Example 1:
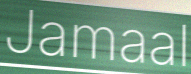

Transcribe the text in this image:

Jamaal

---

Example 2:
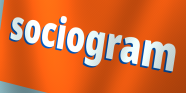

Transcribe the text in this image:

sociogram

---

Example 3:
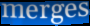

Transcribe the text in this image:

merges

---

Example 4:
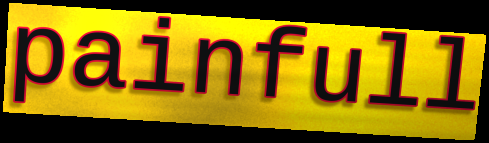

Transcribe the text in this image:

painfull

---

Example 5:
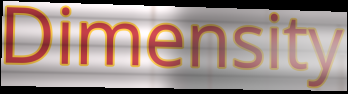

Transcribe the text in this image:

Dimensity